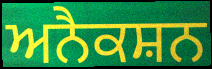
ਅਨੈਕਸ਼ਨ